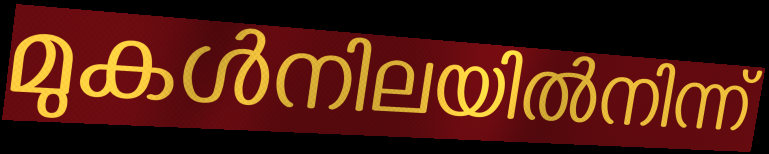
മുകൾനിലയിൽനിന്ന്